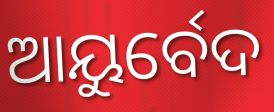
ଆୟୁର୍ବେଦ